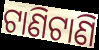
ଟାଣିଟାଣି